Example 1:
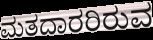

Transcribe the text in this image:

ಮತದಾರರಿರುವ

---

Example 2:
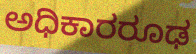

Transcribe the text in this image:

ಅಧಿಕಾರರೂಢ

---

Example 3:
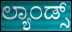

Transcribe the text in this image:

ಲ್ಯಾಂಡ್ಸ್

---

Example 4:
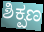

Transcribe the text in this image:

ಶಿಕ್ಪಣ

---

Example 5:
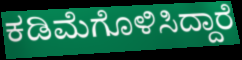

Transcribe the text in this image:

ಕಡಿಮೆಗೊಳಿಸಿದ್ದಾರೆ